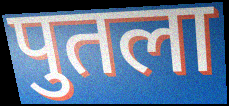
पुतला